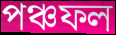
পঞ্চফল